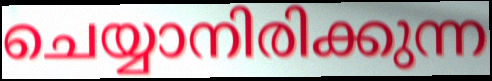
ചെയ്യാനിരിക്കുന്ന